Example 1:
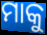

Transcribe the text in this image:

ମାକୁ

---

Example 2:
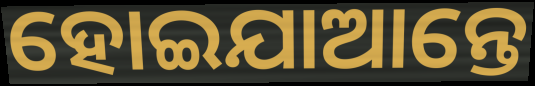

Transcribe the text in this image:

ହୋଇଯାଆନ୍ତେ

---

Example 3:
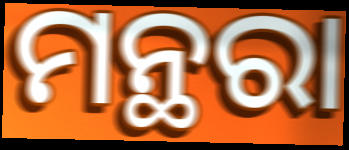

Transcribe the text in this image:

ମନ୍ଥରା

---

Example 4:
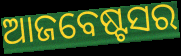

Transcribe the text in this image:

ଆଜବେଷ୍ଟସର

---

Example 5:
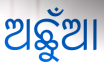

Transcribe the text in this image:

ଅଛୁଁଆ